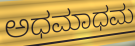
ಅಧಮಾಧಮ